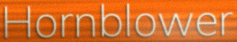
Hornblower